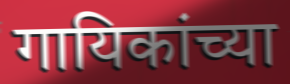
गायिकांच्या